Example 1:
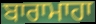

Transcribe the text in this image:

ਬਾਰਾਮਾਹਾ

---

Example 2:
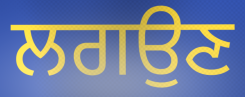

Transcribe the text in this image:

ਲਗਉਣ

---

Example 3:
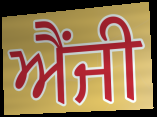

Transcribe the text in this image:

ਐਂਜੀ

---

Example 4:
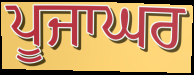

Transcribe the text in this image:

ਪੂਜਾਘਰ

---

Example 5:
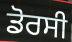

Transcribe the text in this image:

ਡੋਰਸੀ